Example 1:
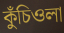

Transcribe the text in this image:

কুঁচিওলা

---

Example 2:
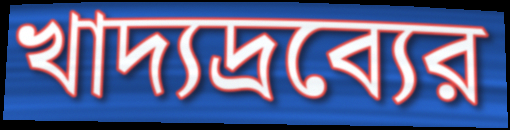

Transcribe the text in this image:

খাদ্যদ্রব্যের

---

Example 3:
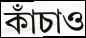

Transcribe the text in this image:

কাঁচাও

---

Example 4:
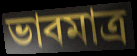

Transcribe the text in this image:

ভাবমাত্র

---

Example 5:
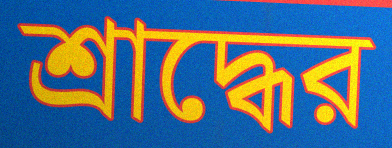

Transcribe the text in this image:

শ্রাদ্ধের